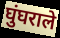
घुंघराले